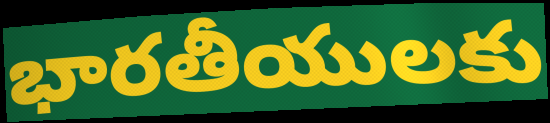
భారతీయులకు